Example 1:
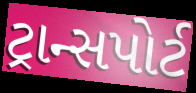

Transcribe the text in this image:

ટ્રાન્સપોર્ટ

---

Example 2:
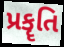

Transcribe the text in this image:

પ્રકૄતિ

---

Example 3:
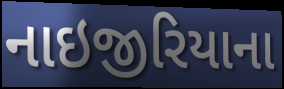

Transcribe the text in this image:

નાઇજીરિયાના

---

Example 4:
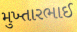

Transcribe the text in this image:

મુખ્તારભાઈ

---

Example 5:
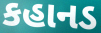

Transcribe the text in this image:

કહાનડ